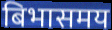
बिभासमय